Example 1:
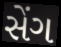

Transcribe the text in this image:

સેંગ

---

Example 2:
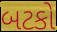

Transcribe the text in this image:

બટકો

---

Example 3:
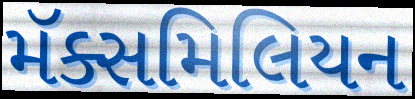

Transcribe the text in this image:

મૅક્સમિલિયન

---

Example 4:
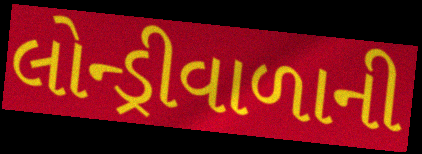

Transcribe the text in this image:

લોન્ડ્રીવાળાની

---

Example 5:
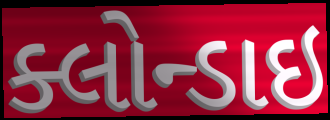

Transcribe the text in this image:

ક્લોન્ડાઇ